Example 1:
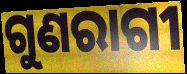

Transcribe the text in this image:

ଗୁଣରାଗୀ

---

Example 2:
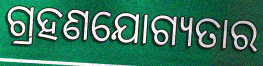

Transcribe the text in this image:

ଗ୍ରହଣଯୋଗ୍ୟତାର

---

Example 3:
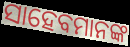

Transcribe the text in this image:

ସାହେବମାନଙ୍କ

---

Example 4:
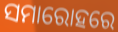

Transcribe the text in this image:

ସମାରୋହରେ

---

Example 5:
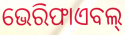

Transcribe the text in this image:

ଭେରିଫାଏବଲ୍